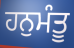
ਹਨੁਮੰਤੂ